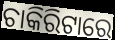
ଚାକିରିଟାରେ